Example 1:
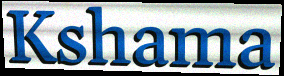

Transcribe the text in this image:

Kshama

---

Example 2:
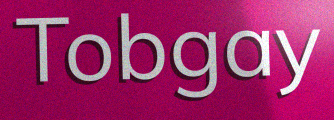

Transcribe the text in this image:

Tobgay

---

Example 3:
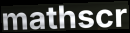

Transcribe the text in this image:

mathscr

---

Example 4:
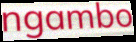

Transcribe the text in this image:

ngambo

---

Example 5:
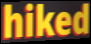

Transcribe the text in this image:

hiked